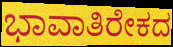
ಭಾವಾತಿರೇಕದ